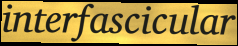
interfascicular